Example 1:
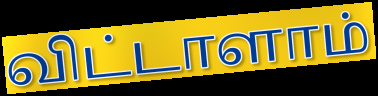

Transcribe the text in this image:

விட்டாளாம்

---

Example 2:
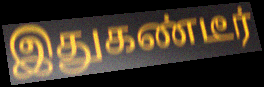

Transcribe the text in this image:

இதுகண்டீர்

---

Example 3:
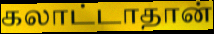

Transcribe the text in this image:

கலாட்டாதான்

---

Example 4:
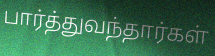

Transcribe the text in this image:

பார்த்துவந்தார்கள்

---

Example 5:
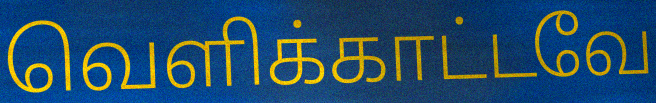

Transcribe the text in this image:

வெளிக்காட்டவே